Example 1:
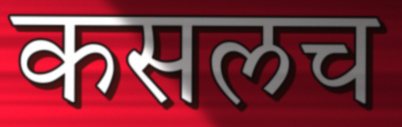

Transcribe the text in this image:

कसलच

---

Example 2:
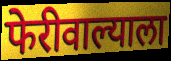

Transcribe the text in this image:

फेरीवाल्याला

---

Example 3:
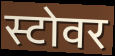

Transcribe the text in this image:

स्टोवर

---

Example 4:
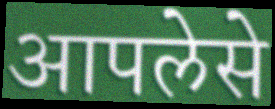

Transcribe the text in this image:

आपलेसे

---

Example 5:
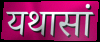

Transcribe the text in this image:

यथासां